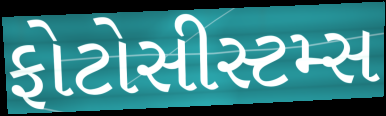
ફોટોસીસ્ટમ્સ